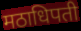
मठाधिपती